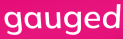
gauged